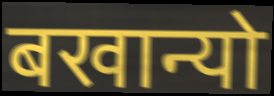
बखान्यो